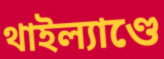
থাইল্যাণ্ডে